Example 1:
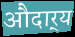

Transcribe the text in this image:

औदार्य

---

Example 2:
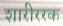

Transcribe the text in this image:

शारीररक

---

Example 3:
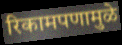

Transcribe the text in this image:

रिकामपणामुळे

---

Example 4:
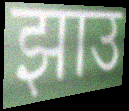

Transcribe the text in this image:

झाउ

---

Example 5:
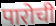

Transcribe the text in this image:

पारोची